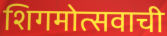
शिगमोत्सवाची